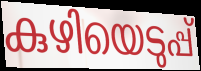
കുഴിയെടുപ്പ്